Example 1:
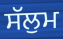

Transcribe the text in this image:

ਸੱਲੁਮ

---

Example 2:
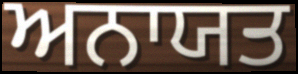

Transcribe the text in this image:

ਅਨਾਯਤ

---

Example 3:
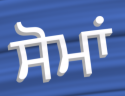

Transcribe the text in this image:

ਸੋਮਾਂ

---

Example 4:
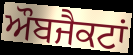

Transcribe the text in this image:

ਔਬਜੈਕਟਾਂ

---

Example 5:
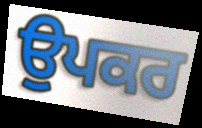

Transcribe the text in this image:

ਉਪਕਰ